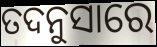
ତଦନୁସାରେ